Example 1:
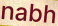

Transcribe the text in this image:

nabh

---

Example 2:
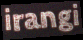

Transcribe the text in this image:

irangi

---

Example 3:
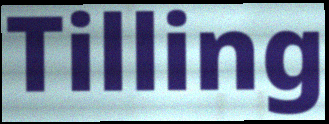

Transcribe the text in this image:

Tilling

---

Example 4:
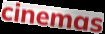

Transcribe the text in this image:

cinemas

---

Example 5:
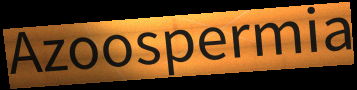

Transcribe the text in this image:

Azoospermia